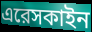
এরেসকাইন